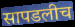
सापडलीच